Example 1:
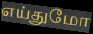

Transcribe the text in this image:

எய்துமோ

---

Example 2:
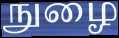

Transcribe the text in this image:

நுழை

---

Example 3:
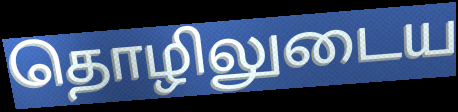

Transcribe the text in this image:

தொழிலுடைய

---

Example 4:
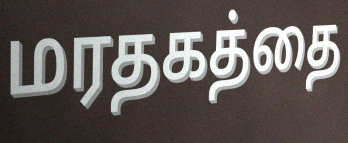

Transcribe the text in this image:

மரதகத்தை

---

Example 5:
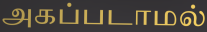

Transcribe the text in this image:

அகப்படாமல்